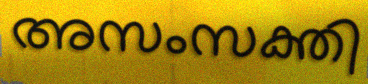
അസംസക്തി